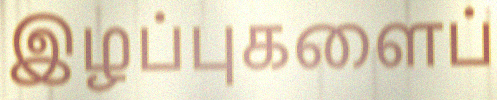
இழப்புகளைப்